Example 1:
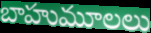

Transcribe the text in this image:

బాహుమూలలు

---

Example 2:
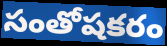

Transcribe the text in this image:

సంతోషకరం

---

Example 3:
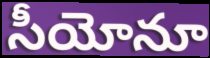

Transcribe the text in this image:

సీయోనూ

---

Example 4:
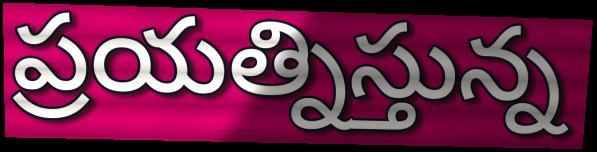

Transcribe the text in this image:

ప్రయత్నిస్తున్న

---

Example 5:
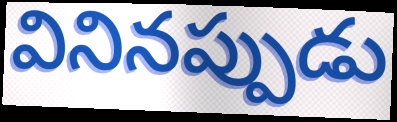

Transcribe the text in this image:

వినినప్పుడు